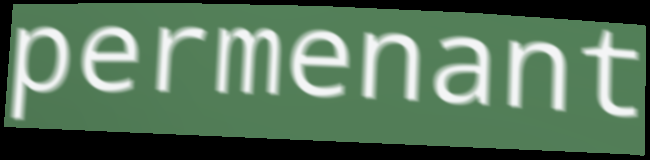
permenant